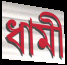
ধামী